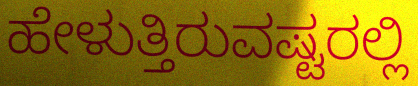
ಹೇಳುತ್ತಿರುವಷ್ಟರಲ್ಲಿ